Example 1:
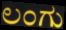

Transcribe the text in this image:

ಲಂಗು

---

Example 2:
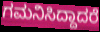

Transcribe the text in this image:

ಗಮನಿಸಿದ್ದಾದರೆ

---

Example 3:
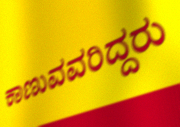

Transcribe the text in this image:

ಕಾಣುವವರಿದ್ದರು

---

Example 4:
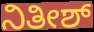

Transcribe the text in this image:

ನಿತೀಶ್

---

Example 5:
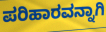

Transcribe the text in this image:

ಪರಿಹಾರವನ್ನಾಗಿ